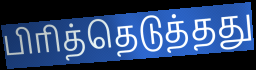
பிரித்தெடுத்தது